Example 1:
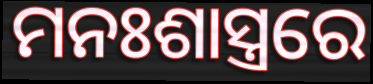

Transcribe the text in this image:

ମନଃଶାସ୍ତ୍ରରେ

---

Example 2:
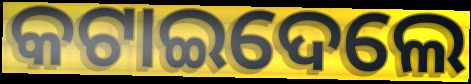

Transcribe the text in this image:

କଟାଇଦେଲେ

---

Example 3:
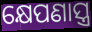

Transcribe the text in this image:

କ୍ଷେପଣାସ୍ତ୍ର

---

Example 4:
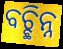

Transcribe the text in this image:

ବଚ୍ଛିନ୍ନ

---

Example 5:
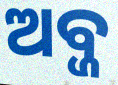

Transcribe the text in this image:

ଅବ୍ଜ